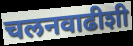
चलनवाढीशी